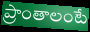
ప్రాంతాలంటే